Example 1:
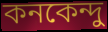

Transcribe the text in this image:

কনকেন্দু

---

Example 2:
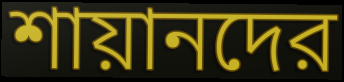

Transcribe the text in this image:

শায়ানদের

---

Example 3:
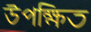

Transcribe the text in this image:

উপক্ষিত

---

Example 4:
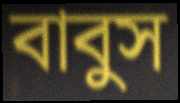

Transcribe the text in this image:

বাবুস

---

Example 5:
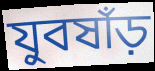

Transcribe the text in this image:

যুবষাঁড়